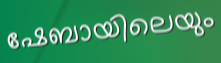
ഷേബായിലെയും